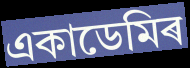
একাডেমিৰ